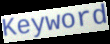
Keyword